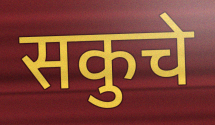
सकुचे